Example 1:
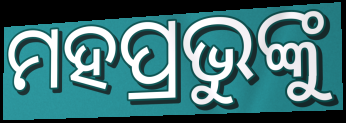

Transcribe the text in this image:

ମହପ୍ରଭୁଙ୍କୁ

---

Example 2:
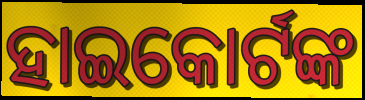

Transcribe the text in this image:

ହାଇକୋର୍ଟଙ୍କ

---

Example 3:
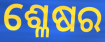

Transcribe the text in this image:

ଶ୍ଳେଷର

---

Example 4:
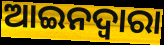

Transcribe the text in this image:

ଆଇନଦ୍ଵାରା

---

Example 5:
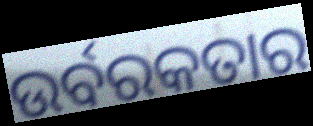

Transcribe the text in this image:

ଉର୍ବରକତାର